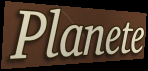
Planete